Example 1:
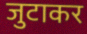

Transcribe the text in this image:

जुटाकर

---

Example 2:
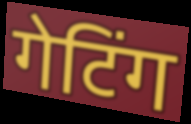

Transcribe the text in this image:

गेटिंग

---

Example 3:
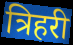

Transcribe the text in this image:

त्रिहरी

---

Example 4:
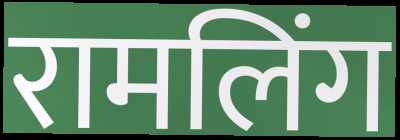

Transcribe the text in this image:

रामलिंग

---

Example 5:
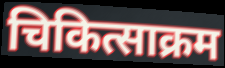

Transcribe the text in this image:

चिकित्साक्रम